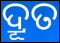
ଦ୍ରୂତ